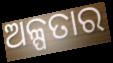
ଅଳ୍ପତାର